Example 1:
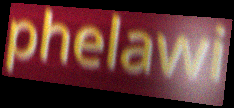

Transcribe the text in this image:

phelawi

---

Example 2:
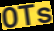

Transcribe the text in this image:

OTs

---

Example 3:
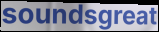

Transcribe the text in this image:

soundsgreat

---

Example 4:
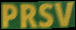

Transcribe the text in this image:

PRSV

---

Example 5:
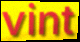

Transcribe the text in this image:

vint